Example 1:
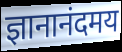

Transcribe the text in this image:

ज्ञानानंदमय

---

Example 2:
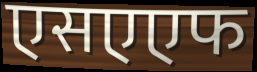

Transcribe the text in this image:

एसएएफ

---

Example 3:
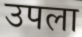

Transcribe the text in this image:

उपला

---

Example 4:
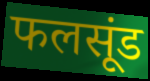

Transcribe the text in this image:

फलसूंड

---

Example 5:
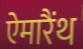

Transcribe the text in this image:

ऐमारैंथ